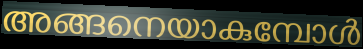
അങ്ങനെയാകുമ്പോൾ